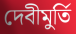
দেবীমুর্তি